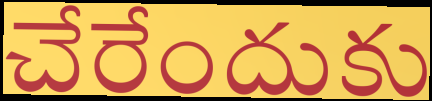
చేరేందుకు